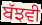
ਬੱਝਵੀ